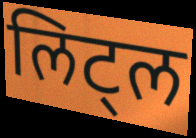
लिट्ल